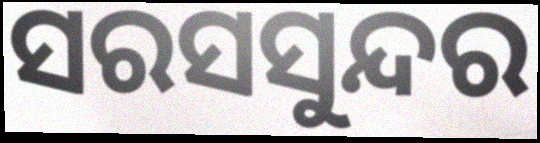
ସରସସୁନ୍ଦର